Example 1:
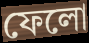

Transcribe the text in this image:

ফেলো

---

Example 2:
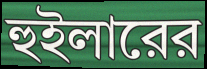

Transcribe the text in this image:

হুইলারের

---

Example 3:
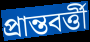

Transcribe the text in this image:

প্রান্তবর্ত্তী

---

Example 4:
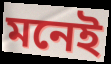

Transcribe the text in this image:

মনেই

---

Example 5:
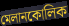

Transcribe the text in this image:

মেলানকোলিক